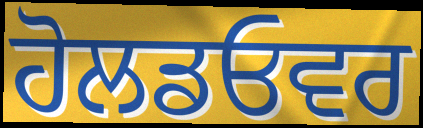
ਹੋਲਡਓਵਰ